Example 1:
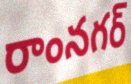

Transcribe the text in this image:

రాంనగర్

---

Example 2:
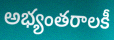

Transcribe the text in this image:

అభ్యంతరాలకీ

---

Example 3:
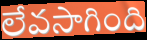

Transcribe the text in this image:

లేవసాగింది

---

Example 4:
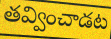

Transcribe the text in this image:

తవ్వించాడట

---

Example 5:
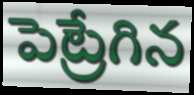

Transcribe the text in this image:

పెట్రేగిన